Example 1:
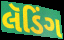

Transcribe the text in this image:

લૅડિંગ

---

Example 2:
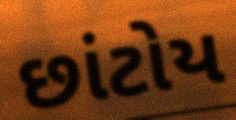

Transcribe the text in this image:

છાંટોય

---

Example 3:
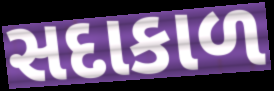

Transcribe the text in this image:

સદાકાળ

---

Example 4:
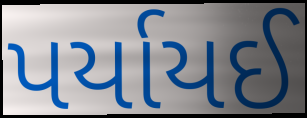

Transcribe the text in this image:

પર્યાયઈ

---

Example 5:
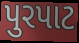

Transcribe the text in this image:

પુરપાટ